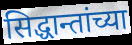
सिद्धान्तांच्या